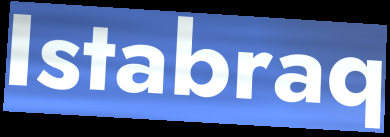
Istabraq